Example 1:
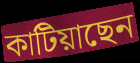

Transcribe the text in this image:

কাটিয়াছেন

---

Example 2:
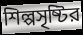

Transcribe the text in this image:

শিল্পসৃষ্টির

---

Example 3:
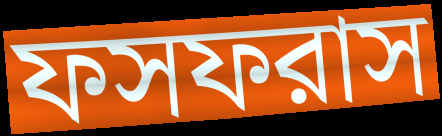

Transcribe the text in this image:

ফসফরাস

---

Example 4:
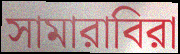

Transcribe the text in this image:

সামারাবিরা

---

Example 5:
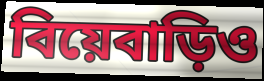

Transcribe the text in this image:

বিয়েবাড়িও